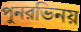
পুনরভিনয়